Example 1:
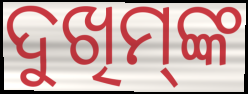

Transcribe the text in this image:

ଦୁଖିମ୍‌ଙ୍କ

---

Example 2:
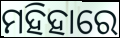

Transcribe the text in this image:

ମହିହାରେ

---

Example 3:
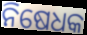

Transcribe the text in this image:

ନିଷେଧକ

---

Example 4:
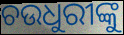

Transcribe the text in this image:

ଚଉଧୁରୀଙ୍କୁ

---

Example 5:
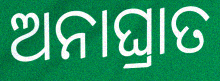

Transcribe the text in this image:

ଅନାଘ୍ରାତ